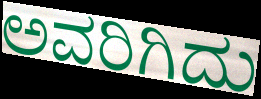
ಅವರಿಗಿದು